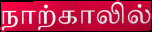
நாற்காலில்